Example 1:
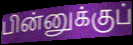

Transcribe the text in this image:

பின்னுக்குப்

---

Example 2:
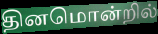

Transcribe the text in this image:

தினமொன்றில்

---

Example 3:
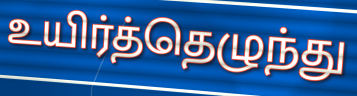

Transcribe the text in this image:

உயிர்த்தெழுந்து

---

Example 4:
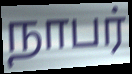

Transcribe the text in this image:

நாபர்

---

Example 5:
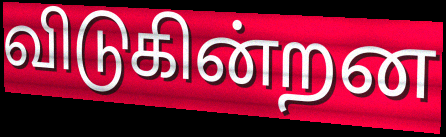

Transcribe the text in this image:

விடுகின்றன